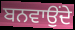
ਬਨਵਾਉਂਦੇ